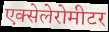
एक्सेलेरोमीटर